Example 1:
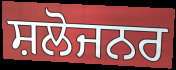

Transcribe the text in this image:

ਸ਼ਲੋਜਨਰ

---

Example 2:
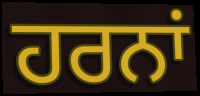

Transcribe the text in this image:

ਹਰਨਾਂ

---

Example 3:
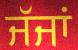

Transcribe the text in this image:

ਜੱਜਾਂ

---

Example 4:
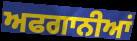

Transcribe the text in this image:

ਅਫਗਾਨੀਆਂ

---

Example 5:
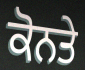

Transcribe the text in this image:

ਕੋਨਤੇ